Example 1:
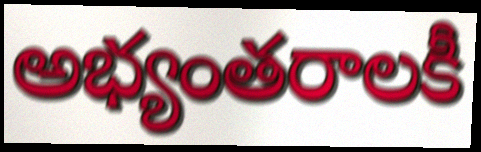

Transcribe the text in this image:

అభ్యంతరాలకీ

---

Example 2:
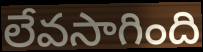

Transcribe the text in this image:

లేవసాగింది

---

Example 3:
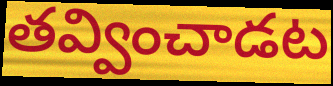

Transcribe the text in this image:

తవ్వించాడట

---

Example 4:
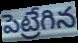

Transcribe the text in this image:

పెట్రేగిన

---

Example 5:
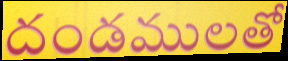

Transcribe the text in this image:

దండములతో